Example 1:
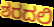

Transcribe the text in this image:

ಶರದಲಿ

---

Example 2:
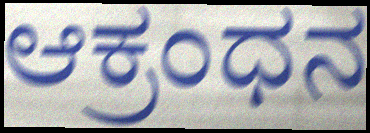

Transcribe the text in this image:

ಆಕ್ರಂಧನ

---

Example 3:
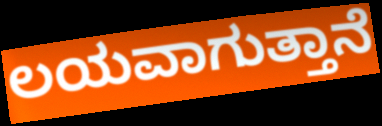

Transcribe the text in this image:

ಲಯವಾಗುತ್ತಾನೆ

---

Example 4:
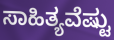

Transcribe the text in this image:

ಸಾಹಿತ್ಯವೆಷ್ಟು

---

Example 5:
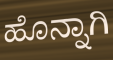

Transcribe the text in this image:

ಹೊನ್ನಾಗಿ